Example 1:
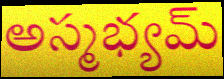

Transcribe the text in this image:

అస్మభ్యమ్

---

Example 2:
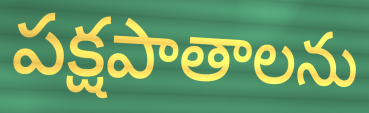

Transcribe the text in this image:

పక్షపాతాలను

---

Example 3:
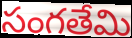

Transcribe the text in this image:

సంగతేమి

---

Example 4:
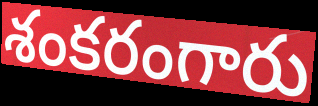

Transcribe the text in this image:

శంకరంగారు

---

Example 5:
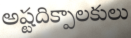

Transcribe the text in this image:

అష్టదిక్పాలకులు